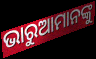
ଭାରୁଆମାନଙ୍କୁ